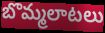
బొమ్మలాటలు